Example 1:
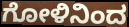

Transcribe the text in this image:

ಗೋಳಿನಿಂದ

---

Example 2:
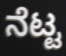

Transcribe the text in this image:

ನೆಟ್ಟ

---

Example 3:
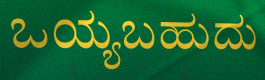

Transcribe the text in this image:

ಒಯ್ಯಬಹುದು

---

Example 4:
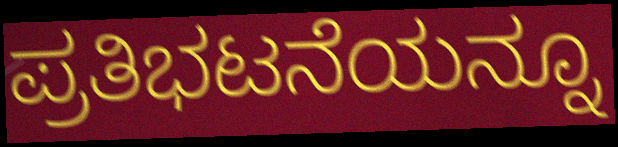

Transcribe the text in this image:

ಪ್ರತಿಭಟನೆಯನ್ನೂ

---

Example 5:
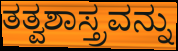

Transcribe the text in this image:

ತತ್ವಶಾಸ್ತ್ರವನ್ನು